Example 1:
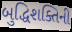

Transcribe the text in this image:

બુદ્ધિશક્તિની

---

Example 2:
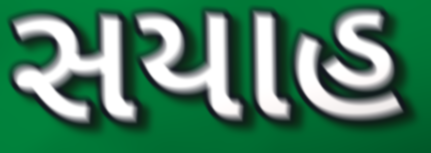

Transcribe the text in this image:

સયાહ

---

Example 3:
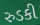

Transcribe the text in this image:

રુડકી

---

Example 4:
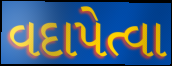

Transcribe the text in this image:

વદાપેત્વા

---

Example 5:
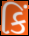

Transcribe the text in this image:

કિં